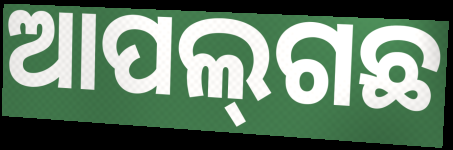
ଆପଲ୍‍ଗଛ